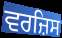
ਵਰਜ਼ਿਸ